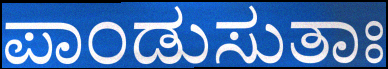
ಪಾಂಡುಸುತಾಃ